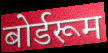
बोर्डरूम